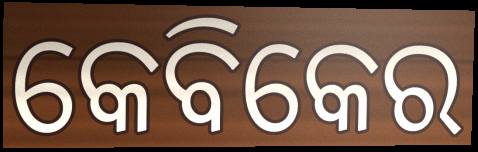
କେବିକେର